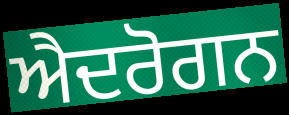
ਐਦਰੋਗਨ